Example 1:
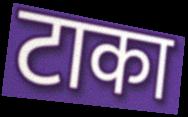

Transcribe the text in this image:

टाका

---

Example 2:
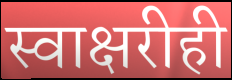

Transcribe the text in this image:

स्वाक्षरीही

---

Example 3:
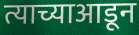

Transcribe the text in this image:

त्याच्याआडून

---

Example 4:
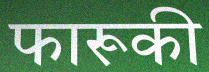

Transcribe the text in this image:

फारूकी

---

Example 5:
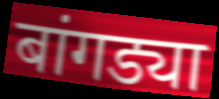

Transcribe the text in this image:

बांगड्या